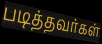
படித்தவர்கள்